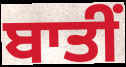
ਬਾਤੀਂ